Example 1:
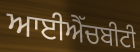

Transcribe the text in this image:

ਆਈਐੱਚਬੀਟੀ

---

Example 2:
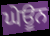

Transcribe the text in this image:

ਘੇਊਨ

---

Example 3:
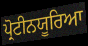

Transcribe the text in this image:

ਪ੍ਰੋਟੀਨਯੂਰਿਆ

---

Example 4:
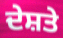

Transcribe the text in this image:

ਦੇਸ਼ਤੇ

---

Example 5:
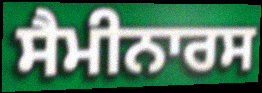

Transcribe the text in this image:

ਸੈਮੀਨਾਰਸ